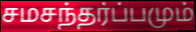
சமசந்தர்ப்பமும்